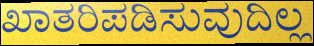
ಖಾತರಿಪಡಿಸುವುದಿಲ್ಲ